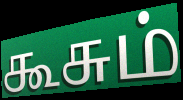
கூசும்